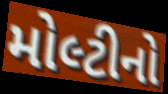
મોલ્ટીનો